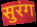
सुरंग